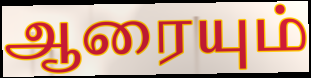
ஆரையும்